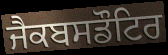
ਜੈਕਬਸਡੌਟਿਰ